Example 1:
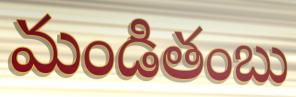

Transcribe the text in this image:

మండితంబు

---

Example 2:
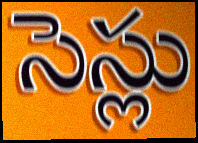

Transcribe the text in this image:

సెస్లు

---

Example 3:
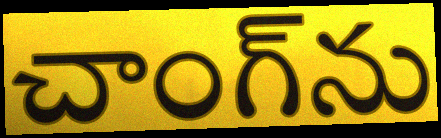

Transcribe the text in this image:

చాంగ్‌ను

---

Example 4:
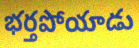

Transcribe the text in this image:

భర్తపోయాడు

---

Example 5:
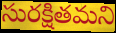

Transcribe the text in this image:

సురక్షితమని